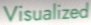
Visualized